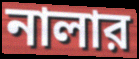
নালার